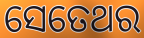
ସେତେଥର